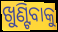
ଖୁଣ୍ଟିବାକୁ